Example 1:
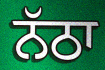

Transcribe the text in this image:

ਨੱਠਾ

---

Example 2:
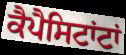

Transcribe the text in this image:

ਕੈਪੈਸਿਟਾਂਟਾਂ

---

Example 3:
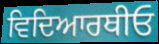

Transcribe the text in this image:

ਵਿਦਿਆਰਥੀਓ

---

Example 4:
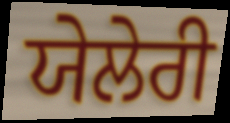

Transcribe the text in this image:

ਯੇਲੇਰੀ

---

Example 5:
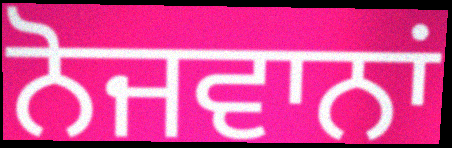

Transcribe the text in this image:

ਨੋਜਵਾਨਾਂ